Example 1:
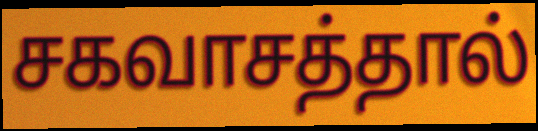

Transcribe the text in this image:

சகவாசத்தால்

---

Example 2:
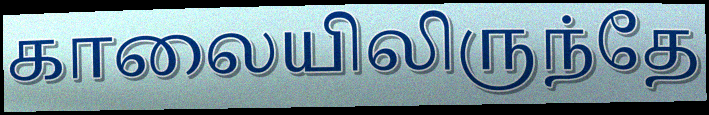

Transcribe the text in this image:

காலையிலிருந்தே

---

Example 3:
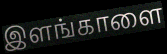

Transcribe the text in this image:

இளங்காளை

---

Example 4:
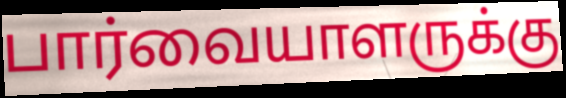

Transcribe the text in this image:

பார்வையாளருக்கு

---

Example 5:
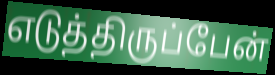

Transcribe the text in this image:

எடுத்திருப்பேன்